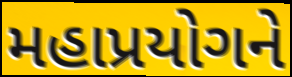
મહાપ્રયોગને